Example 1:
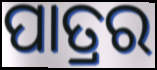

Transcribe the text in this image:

ପାତ୍ରର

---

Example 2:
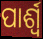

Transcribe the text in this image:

ପାର୍ଶ୍ୱ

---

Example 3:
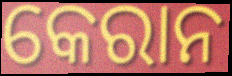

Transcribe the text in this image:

କେରାନ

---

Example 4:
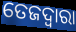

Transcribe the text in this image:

ତେଜଦ୍ୱାରା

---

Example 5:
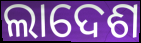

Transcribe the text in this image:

ଲାଦେଶ